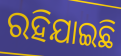
ରହିଯାଇଛି